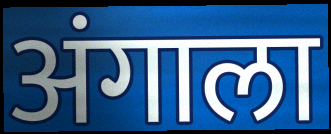
अंगाला